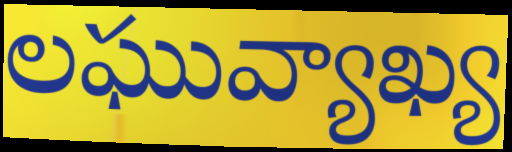
లఘువ్యాఖ్య